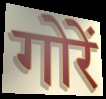
गोरें